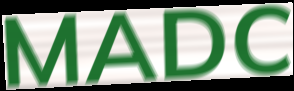
MADC